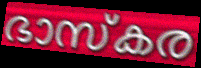
ഭാസ്കര